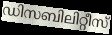
ഡിസബിലിറ്റീസ്